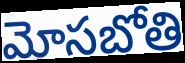
మోసబోతి